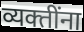
व्यक्‍तींना